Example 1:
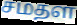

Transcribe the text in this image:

சமதள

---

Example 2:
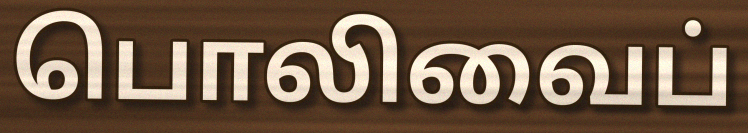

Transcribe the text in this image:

பொலிவைப்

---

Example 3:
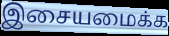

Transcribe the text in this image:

இசையமைக்க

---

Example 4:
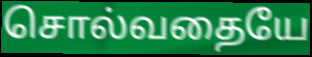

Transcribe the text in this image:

சொல்வதையே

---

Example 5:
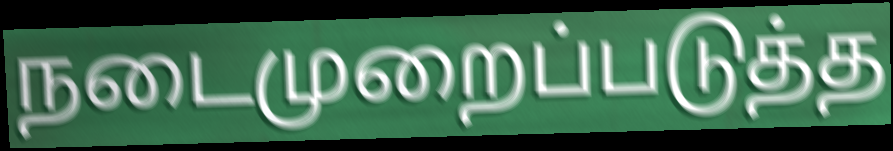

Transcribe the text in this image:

நடைமுறைப்படுத்த